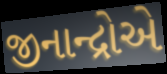
જીનાન્દ્રોએ